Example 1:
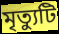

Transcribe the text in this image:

মৃত্যুটি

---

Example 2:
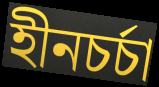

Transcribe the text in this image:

হীনচর্চা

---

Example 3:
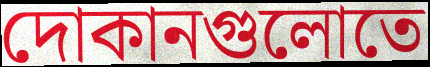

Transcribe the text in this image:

দোকানগুলোতে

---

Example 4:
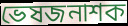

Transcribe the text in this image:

ভেষজনাশক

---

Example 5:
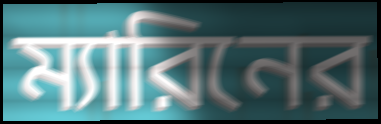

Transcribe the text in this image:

ম্যারিনের